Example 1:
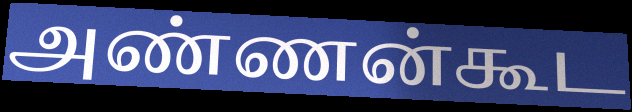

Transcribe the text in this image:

அண்ணன்கூட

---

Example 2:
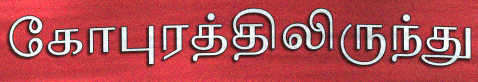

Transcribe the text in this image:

கோபுரத்திலிருந்து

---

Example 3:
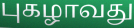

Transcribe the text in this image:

புகழாவது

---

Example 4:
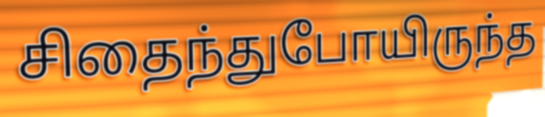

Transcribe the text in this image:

சிதைந்துபோயிருந்த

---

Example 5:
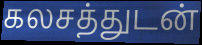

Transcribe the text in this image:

கலசத்துடன்